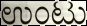
ಉಂಟು